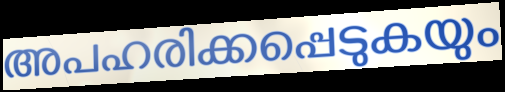
അപഹരിക്കപ്പെടുകയും